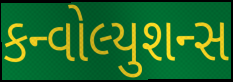
કન્વોલ્યુશન્સ